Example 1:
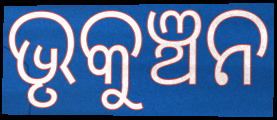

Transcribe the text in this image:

ଭୃକୁଞ୍ଚନ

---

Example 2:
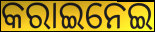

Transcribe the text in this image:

କରାଇନେଇ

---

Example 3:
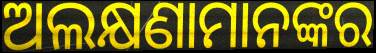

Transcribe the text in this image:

ଅଲକ୍ଷଣାମାନଙ୍କର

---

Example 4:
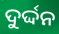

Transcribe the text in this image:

ଦୁର୍ଦ୍ଦନ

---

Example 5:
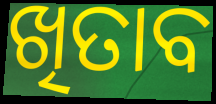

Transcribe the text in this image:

ଖିତାବ